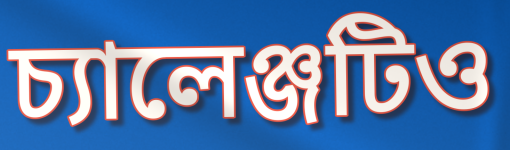
চ্যালেঞ্জটিও